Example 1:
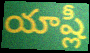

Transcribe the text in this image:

యాష్లీ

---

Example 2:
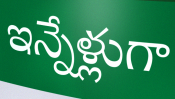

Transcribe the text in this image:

ఇన్నేళ్లుగా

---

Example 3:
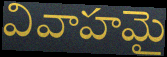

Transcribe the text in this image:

వివాహమై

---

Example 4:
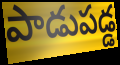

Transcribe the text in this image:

పాడుపడ్డ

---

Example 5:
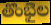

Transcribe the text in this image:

తొంభైల